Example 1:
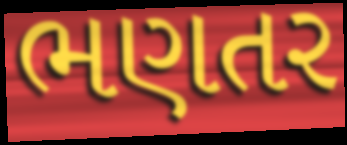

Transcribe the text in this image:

ભણતર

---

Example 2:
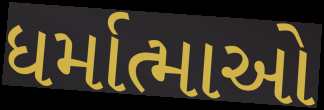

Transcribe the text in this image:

ધર્માત્માઓ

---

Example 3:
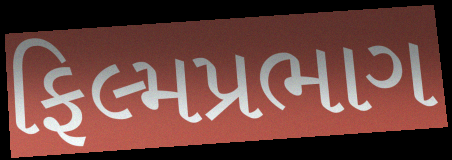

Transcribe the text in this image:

ફિલ્મપ્રભાગ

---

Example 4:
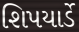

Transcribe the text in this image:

શિપયાર્ડે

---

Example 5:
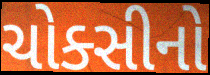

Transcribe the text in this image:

ચોક્સીનો